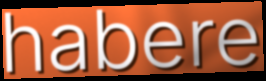
habere